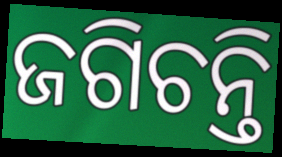
ଜଗିଚନ୍ତି